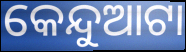
କେନ୍ଦୁଆଟା